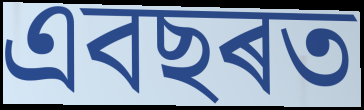
এবছৰত